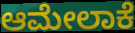
ಆಮೇಲಾಕೆ